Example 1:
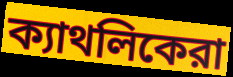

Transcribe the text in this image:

ক্যাথলিকেরা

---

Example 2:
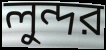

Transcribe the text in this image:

লুন্দর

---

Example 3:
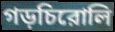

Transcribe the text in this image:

গড়চিরোলি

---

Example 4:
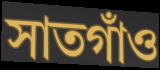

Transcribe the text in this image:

সাতগাঁও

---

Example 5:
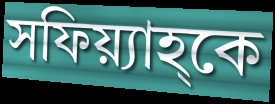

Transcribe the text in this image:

সফিয়্যাহ্কে